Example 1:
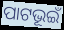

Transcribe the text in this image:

ପାଟଭୂଇଁ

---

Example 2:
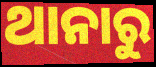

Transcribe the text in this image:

ଥାନାରୁ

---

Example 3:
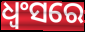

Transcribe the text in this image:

ଧ୍ୱଂସରେ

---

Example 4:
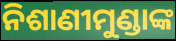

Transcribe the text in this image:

ନିଶାଣୀମୁଣ୍ଡାଙ୍କ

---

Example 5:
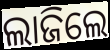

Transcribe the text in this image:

ଲାଜିଲେ